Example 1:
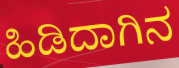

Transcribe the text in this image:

ಹಿಡಿದಾಗಿನ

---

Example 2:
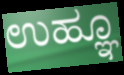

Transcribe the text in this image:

ಉಹ್ಞೂ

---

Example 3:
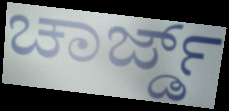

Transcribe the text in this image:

ಚಾರ್ಜ್ಡ್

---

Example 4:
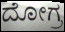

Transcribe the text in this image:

ದೋಗ್ರ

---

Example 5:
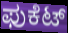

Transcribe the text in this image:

ಫುಕೆಟ್